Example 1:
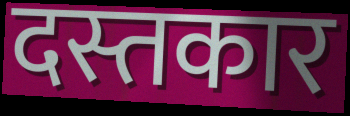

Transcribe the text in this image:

दस्‍तकार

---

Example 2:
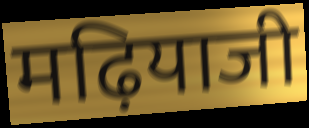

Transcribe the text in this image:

मढ़ियाजी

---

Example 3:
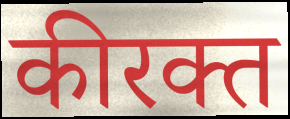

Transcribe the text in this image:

कीरक्त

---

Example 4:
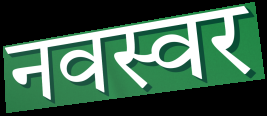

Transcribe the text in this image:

नवस्वर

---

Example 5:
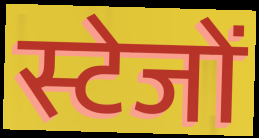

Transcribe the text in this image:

स्टेजों